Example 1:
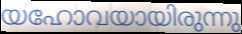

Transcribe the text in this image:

യഹോവയായിരുന്നു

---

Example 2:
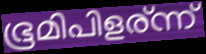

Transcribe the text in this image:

ഭൂമിപിളര്ന്ന്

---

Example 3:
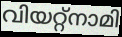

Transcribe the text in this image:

വിയറ്റ്നാമി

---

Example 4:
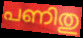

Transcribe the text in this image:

പണിതു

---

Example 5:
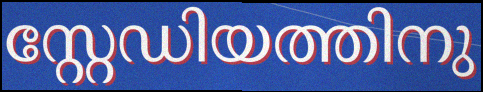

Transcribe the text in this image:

സ്റ്റേഡിയത്തിനു